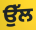
ਉੱਲ